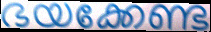
ഭയക്കേണ്ട